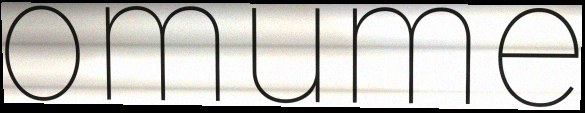
omume